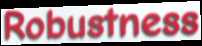
Robustness